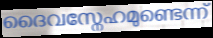
ദൈവസ്നേഹമുണ്ടെന്ന്